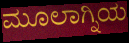
ಮೂಲಾಗ್ನಿಯ